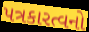
પત્રકારત્વનો